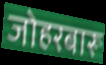
जोहरबारू